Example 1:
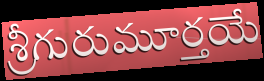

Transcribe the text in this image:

శ్రీగురుమూర్తయే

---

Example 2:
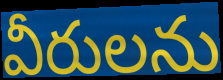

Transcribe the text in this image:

వీరులను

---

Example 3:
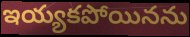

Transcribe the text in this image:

ఇయ్యకపోయినను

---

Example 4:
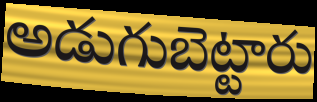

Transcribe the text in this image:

అడుగుబెట్టారు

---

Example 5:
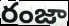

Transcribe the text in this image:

రంజా